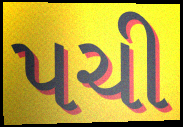
પચી